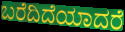
ಬರೆದಿದೆಯಾದರೆ